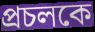
প্রচলকে